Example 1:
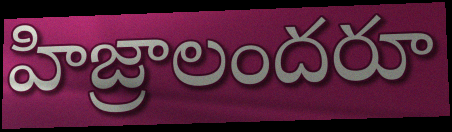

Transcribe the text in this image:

హిజ్రాలందరూ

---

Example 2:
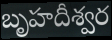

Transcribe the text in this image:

బృహదీశ్వర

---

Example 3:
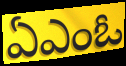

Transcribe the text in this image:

ఏఎంఓ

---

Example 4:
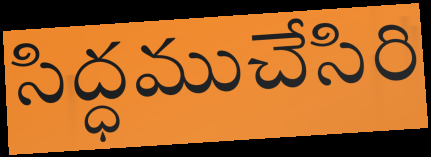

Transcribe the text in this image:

సిద్ధముచేసిరి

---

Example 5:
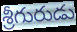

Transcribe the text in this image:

శ్రీగురుడు